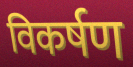
विकर्षण